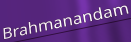
Brahmanandam